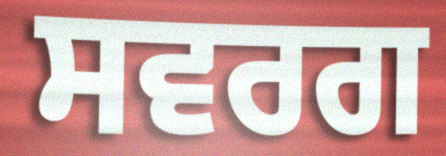
ਸਵਰਗ